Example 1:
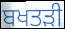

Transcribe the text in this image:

ਬਖਤੜੀ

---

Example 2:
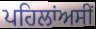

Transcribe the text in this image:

ਪਹਿਲਾਂਅਸੀਂ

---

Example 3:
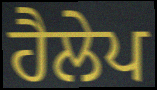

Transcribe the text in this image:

ਹੈਲੇਪ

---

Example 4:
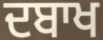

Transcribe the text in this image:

ਦਬਾਖ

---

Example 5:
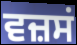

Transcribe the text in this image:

ਵਜ਼ਸਂ